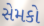
સેમકો